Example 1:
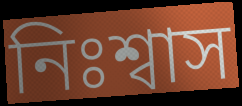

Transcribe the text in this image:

নিঃশ্বাস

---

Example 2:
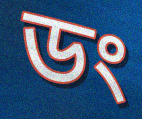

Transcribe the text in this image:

ডং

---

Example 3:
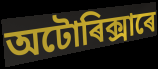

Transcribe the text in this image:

অটোৰিক্সাৰে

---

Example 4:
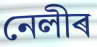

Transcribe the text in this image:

নেলীৰ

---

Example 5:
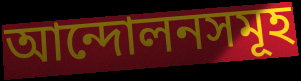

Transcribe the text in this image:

আন্দোলনসমূহ